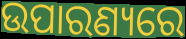
ଉପାରଣ୍ୟରେ